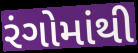
રંગોમાંથી